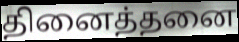
தினைத்தனை